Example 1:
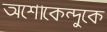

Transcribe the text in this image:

অশোকেন্দুকে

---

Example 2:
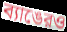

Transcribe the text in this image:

ব্যাঙেরও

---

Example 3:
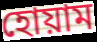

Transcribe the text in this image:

হোয়াম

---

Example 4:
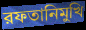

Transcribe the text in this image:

রফতানিমুখি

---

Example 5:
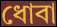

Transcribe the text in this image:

ধোবা